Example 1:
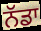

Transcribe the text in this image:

ਨੱਡਾ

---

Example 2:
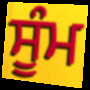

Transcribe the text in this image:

ਸੂੰਮ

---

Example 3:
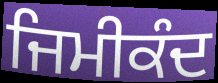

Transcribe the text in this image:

ਜਿਮੀਕੰਦ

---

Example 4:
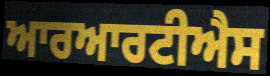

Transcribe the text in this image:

ਆਰਆਰਟੀਐਸ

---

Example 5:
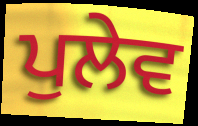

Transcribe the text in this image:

ਪੁਲੇਵ